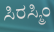
ಸಿರಸ್ಮಿಂ